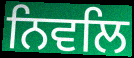
ਨਿਵਲਿ